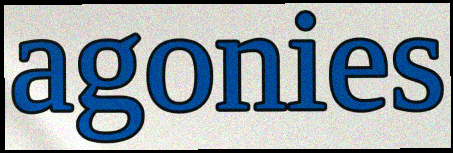
agonies